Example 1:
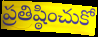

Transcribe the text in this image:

ప్రతిష్ఠించుకో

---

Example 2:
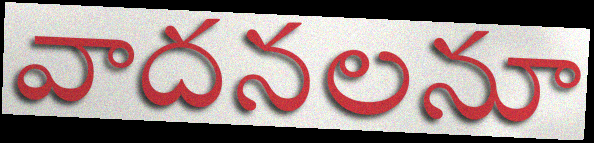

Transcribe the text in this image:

వాదనలనూ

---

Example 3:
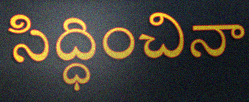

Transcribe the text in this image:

సిద్ధించినా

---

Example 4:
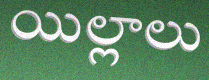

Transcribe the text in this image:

యిల్లాలు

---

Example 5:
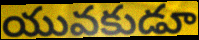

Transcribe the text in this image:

యువకుడూ